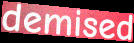
demised